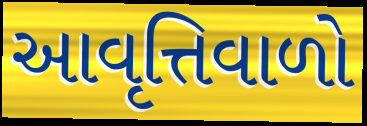
આવૃત્તિવાળો